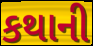
કથાની